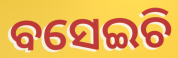
ବସେଇଚି